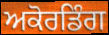
ਅਕੋਰਡਿੰਗ